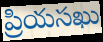
ప్రియసఖు